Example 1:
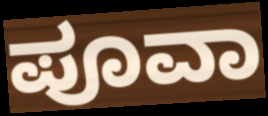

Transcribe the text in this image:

ಪೂವಾ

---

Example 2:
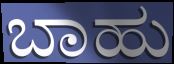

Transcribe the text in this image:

ಬಾಹು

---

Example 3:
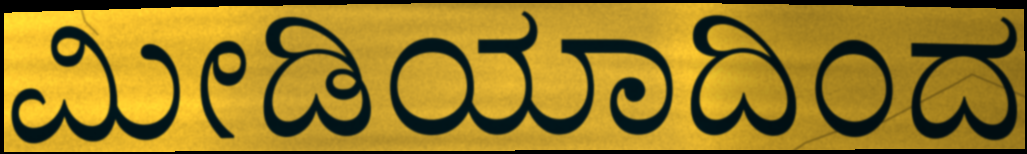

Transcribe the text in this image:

ಮೀಡಿಯಾದಿಂದ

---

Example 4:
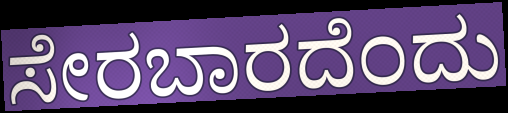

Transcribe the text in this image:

ಸೇರಬಾರದೆಂದು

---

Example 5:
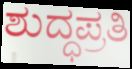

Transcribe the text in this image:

ಶುದ್ಧಪ್ರತಿ